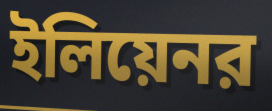
ইলিয়েনর